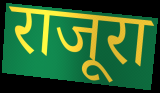
राजूरा